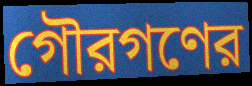
গৌরগণের